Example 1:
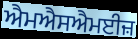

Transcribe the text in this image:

ਐਮਐਸਐਮਈਜ਼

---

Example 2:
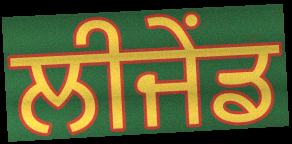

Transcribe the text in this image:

ਲੀਜੇਂਡ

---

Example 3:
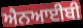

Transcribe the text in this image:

ਐਨਆਈਬੀ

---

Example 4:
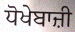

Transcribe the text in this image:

ਧੋਖੇਬਾਜ਼ੀ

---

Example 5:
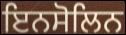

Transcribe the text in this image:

ਇਨਸੋਲਿਨ